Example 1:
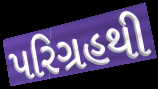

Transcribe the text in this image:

પરિગ્રહથી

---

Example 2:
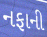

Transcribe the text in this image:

નફાની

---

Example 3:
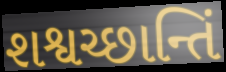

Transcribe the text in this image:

શશ્વચ્છાન્તિં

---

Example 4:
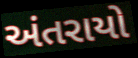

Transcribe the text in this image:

અંતરાયો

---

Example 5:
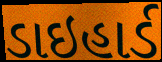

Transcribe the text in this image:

ડાઇહાર્ડ